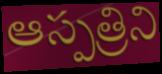
ఆస్పత్రిని